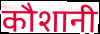
कौशानी